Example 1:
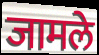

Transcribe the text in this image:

जामले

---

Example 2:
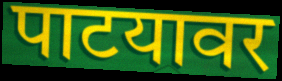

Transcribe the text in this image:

पाटयावर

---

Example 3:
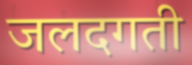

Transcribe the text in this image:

जलदगती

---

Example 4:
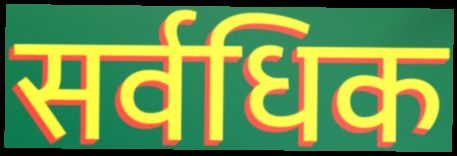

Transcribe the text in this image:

सर्वधिक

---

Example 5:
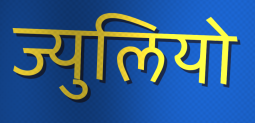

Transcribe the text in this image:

ज्युलियो